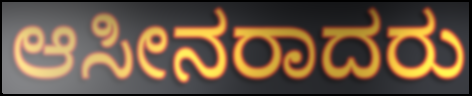
ಆಸೀನರಾದರು